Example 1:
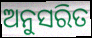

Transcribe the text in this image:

ଅନୁସରିତ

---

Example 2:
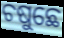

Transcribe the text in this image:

ଚଷୁଛେ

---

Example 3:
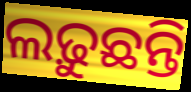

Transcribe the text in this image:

ଲଢ଼ୁଛନ୍ତି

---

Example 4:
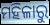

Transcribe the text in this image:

ମହିଳାରୁ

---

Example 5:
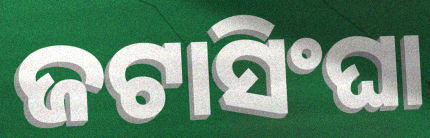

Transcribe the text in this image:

ଜଟାସିଂଘା